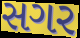
સગર